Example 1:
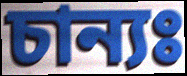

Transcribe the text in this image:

চান্যঃ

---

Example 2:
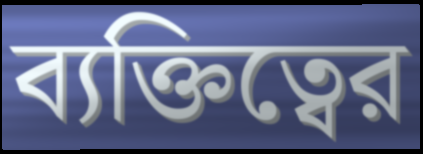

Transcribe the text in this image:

ব্যক্তিত্বের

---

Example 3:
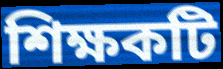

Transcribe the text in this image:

শিক্ষকটি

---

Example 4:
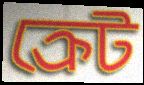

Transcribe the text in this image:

ক্রেট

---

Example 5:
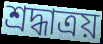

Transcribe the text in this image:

শ্রদ্ধাত্রয়